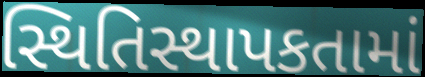
સ્થિતિસ્થાપકતામાં